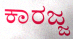
ಕಾರಜ್ಜ